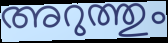
അറുത്തും